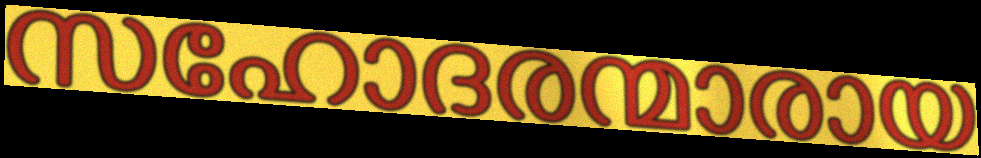
സഹോദരന്മാരായ